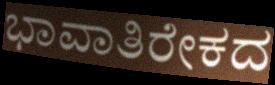
ಭಾವಾತಿರೇಕದ